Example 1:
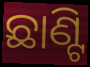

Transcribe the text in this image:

ଛାଣ୍ଟି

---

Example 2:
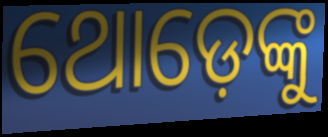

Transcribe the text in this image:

ଥୋଡ଼େଙ୍କୁ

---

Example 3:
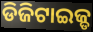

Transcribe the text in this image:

ଡିଜିଟାଇଜ୍ଡ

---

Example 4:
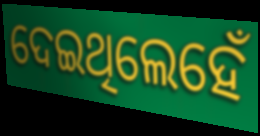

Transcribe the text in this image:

ଦେଇଥିଲେହେଁ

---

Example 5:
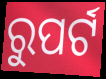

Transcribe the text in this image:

ରୁପର୍ଟ